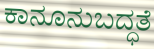
ಕಾನೂನುಬದ್ಧತೆ